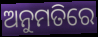
ଅନୁମତିରେ